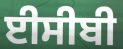
ਈਸੀਬੀ